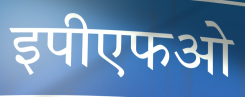
इपीएफओ